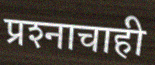
प्रश्नाचाही